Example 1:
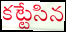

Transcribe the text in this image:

కట్టేసిన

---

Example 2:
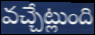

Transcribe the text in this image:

వచ్చేట్లుంది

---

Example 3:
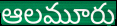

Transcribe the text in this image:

ఆలమూరు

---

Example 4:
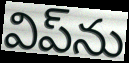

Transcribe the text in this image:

విప్‌ను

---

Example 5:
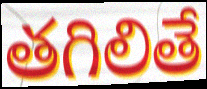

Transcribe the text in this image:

తగిలితే